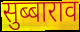
सुब्बाराव